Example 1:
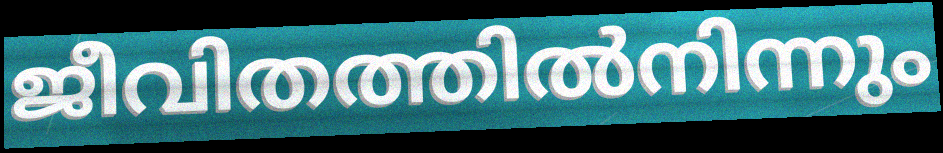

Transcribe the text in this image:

ജീവിതത്തിൽനിന്നും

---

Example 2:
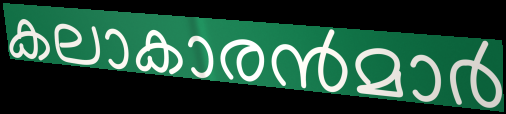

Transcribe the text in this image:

കലാകാരൻമാർ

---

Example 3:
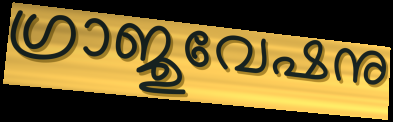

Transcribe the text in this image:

ഗ്രാജുവേഷനു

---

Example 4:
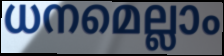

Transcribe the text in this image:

ധനമെല്ലാം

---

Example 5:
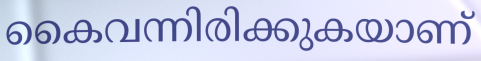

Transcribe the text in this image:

കൈവന്നിരിക്കുകയാണ്